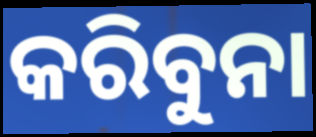
କରିବୁନା